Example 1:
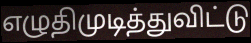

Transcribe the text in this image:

எழுதிமுடித்துவிட்டு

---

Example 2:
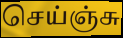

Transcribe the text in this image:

செய்ஞ்சு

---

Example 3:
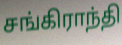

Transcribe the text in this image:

சங்கிராந்தி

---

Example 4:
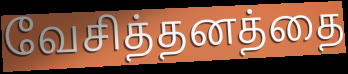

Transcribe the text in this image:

வேசித்தனத்தை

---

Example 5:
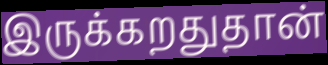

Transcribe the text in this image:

இருக்கறதுதான்